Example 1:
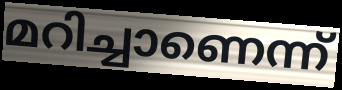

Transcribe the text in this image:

മറിച്ചാണെന്ന്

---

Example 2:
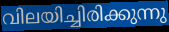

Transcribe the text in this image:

വിലയിച്ചിരിക്കുന്നു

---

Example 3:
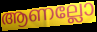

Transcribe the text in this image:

ആണല്ലോ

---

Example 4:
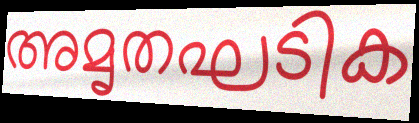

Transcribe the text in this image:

അമൃതഘടിക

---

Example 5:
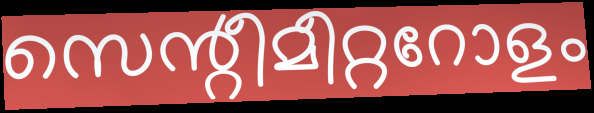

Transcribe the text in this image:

സെന്റീമീറ്ററോളം